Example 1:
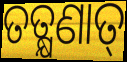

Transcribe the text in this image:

ତତ୍କ୍ଷଣାତ୍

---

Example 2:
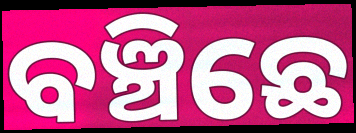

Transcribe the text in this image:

ବଞ୍ଚିଛେ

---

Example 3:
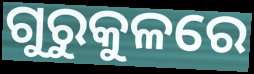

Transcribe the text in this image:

ଗୁରୁକୁଳରେ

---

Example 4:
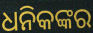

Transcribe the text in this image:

ଧନିକଙ୍କର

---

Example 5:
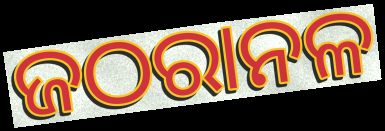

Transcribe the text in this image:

ଜଠରାନଳ